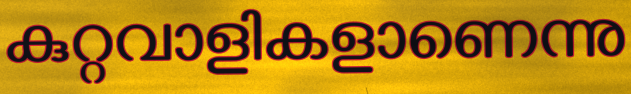
കുറ്റവാളികളാണെന്നു